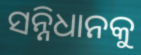
ସନ୍ନିଧାନକୁ